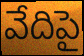
వేదిపై